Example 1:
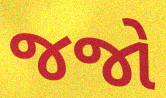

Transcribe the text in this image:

જજો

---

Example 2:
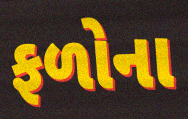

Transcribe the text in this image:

ફળોના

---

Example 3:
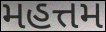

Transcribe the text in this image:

મહત્તમ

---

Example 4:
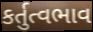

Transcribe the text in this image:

કર્તુત્વભાવ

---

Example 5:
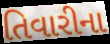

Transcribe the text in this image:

તિવારીના